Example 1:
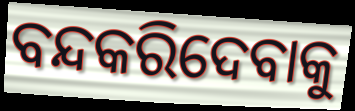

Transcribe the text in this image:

ବନ୍ଦକରିଦେବାକୁ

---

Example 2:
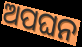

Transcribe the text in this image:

ଅପଘନ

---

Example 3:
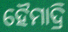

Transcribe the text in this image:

ହୈମାଦ୍ରି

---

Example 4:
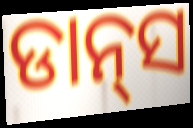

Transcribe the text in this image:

ଡାନ୍‍ସ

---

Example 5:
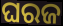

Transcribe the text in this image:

ଘରଜ